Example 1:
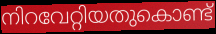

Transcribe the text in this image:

നിറവേറ്റിയതുകൊണ്ട്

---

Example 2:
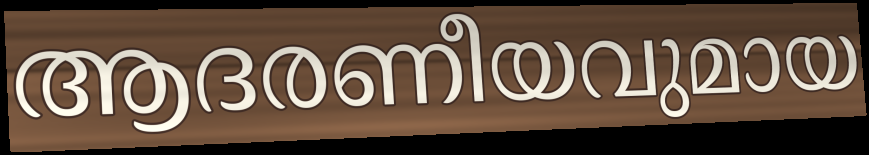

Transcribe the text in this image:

ആദരണീയവുമായ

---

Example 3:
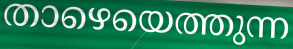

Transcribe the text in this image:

താഴെയെത്തുന്ന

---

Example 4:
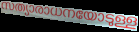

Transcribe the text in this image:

സത്യാരാധനയോടുള്ള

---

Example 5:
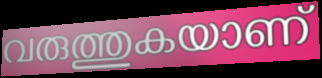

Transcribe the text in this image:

വരുത്തുകയാണ്